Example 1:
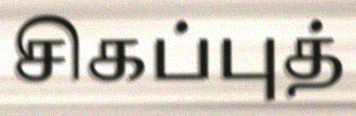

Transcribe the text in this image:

சிகப்புத்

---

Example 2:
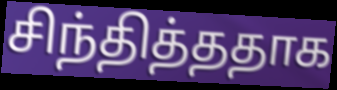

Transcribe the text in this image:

சிந்தித்ததாக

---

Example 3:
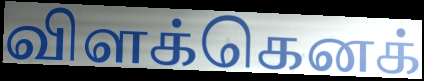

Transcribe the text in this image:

விளக்கெனக்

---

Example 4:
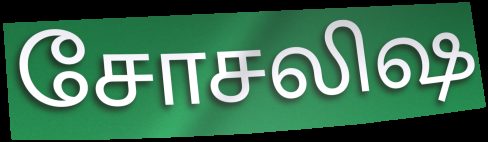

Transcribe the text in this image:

சோசலிஷ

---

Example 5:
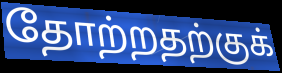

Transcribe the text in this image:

தோற்றதற்குக்